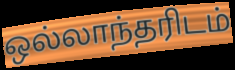
ஒல்லாந்தரிடம்